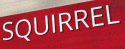
SQUIRREL